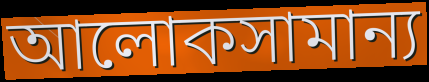
আলোকসামান্য